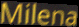
Milena